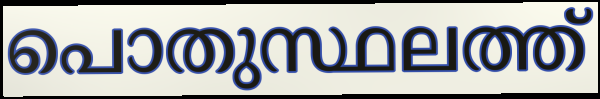
പൊതുസ്ഥലത്ത്